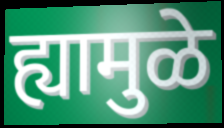
ह्यामुळे